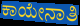
ಕಾಯೇನಾತಿ